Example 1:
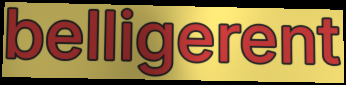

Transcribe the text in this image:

belligerent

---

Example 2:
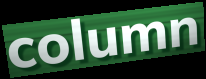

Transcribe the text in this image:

column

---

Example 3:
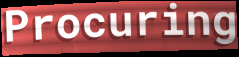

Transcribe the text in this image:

Procuring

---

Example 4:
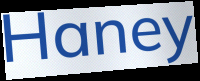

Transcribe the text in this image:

Haney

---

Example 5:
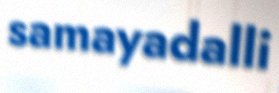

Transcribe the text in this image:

samayadalli